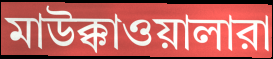
মাউক্কাওয়ালারা